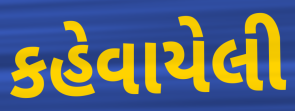
કહેવાયેલી